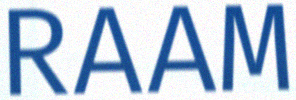
RAAM